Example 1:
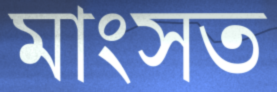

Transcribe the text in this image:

মাংসত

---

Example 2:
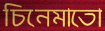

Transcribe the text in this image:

চিনেমাতো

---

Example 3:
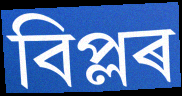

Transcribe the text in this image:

বিপ্লৰ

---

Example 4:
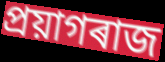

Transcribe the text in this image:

প্ৰয়াগৰাজ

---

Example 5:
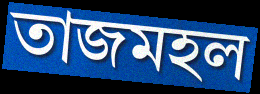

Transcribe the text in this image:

তাজমহল